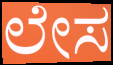
ಲೇಸ